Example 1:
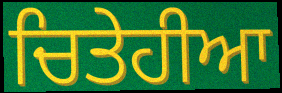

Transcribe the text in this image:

ਚਿਤੇਹੀਆ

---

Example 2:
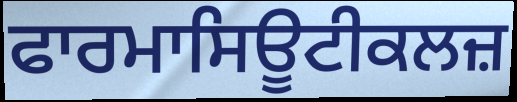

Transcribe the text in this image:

ਫਾਰਮਾਸਿਊਟੀਕਲਜ਼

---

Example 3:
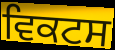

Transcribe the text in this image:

ਵਿਕਟਸ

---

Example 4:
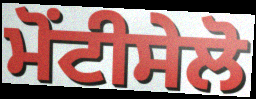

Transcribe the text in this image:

ਮੋਂਟੀਸੇਲੋ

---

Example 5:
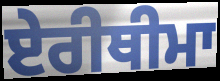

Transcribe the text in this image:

ਏਰੀਥੀਮਾ